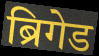
ब्रिगेड